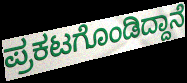
ಪ್ರಕಟಗೊಂಡಿದ್ದಾನೆ